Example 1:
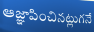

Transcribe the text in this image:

ఆజ్ఞాపించినట్లుగనే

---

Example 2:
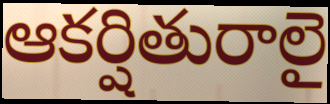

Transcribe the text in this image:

ఆకర్షితురాలై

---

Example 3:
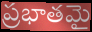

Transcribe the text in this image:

ప్రభాతమై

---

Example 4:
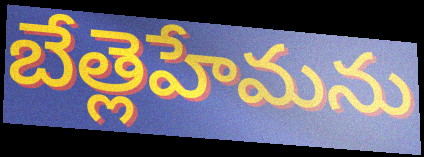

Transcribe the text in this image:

బేత్లెహేమను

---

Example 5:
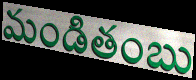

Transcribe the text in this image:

మండితంబు